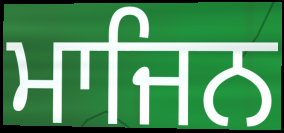
ਮਾਜਿਨ